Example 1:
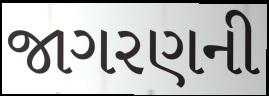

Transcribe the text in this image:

જાગરણની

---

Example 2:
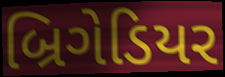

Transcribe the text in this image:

બ્રિગેડિયર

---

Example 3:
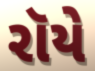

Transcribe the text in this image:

રૉયે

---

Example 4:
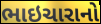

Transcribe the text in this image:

ભાઇચારાનો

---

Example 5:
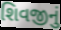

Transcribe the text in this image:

શિવજીનું